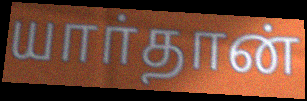
யார்தான்